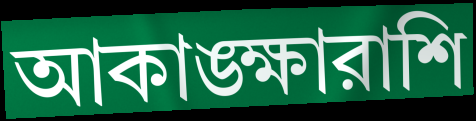
আকাঙ্ক্ষারাশি